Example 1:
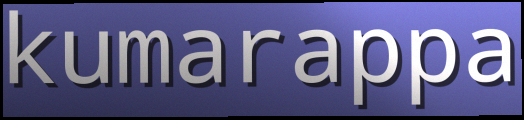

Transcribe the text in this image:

kumarappa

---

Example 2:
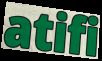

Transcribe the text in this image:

atifi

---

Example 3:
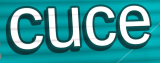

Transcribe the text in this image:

cuce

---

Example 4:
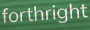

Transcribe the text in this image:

forthright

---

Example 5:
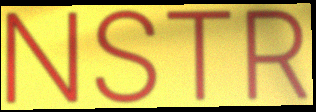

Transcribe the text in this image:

NSTR